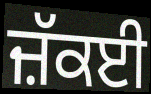
ਜ਼ੱਕਈ